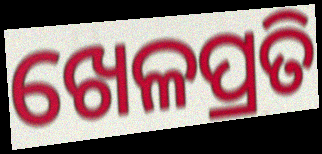
ଖେଳପ୍ରତି